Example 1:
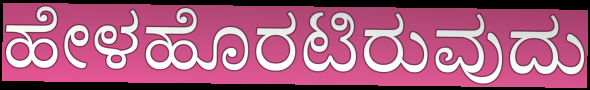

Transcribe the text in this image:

ಹೇಳಹೊರಟಿರುವುದು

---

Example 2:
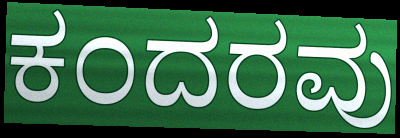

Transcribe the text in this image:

ಕಂದರವು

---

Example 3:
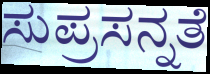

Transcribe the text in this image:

ಸುಪ್ರಸನ್ನತೆ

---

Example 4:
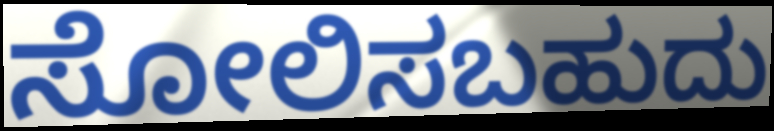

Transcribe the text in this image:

ಸೋಲಿಸಬಹುದು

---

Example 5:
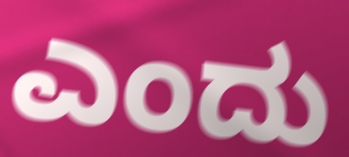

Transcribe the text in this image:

ಎಂದು